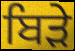
ਬਿੜੇ